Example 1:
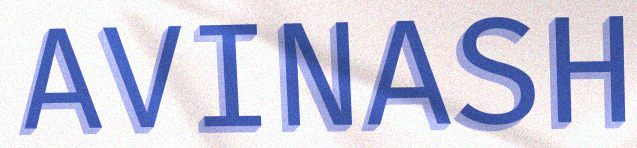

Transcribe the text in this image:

AVINASH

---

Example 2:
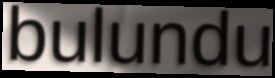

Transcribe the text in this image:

bulundu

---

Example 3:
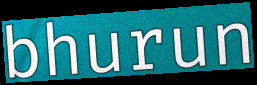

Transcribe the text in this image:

bhurun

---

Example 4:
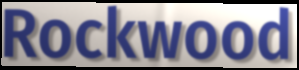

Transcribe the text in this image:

Rockwood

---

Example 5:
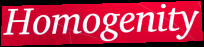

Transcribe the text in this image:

Homogenity